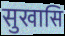
सुखासि